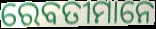
ରେବତୀମାନେ